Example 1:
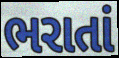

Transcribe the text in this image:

ભરાતાં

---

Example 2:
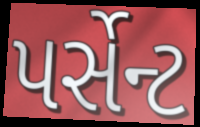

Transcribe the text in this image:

પર્સેન્ટ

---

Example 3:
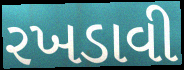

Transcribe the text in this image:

રખડાવી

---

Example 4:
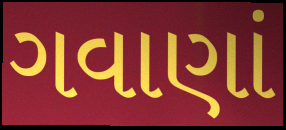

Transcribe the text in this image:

ગવાણાં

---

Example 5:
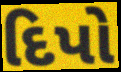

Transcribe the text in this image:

દિપો